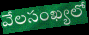
వేలసంఖ్యలో